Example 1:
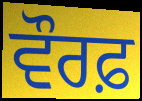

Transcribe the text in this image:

ਵੌਰਫ਼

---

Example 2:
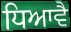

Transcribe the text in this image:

ਧਿਆਵੈ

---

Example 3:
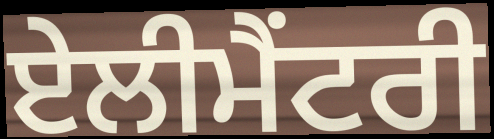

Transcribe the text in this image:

ਏਲੀਮੈਂਟਰੀ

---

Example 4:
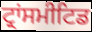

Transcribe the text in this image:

ਟ੍ਰਾਂਸਮੀਟਿਡ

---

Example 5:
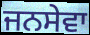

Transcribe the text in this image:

ਜਨਸੇਵਾ